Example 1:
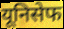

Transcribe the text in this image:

यूनिसेफ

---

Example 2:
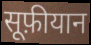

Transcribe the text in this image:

सूफ़ीयान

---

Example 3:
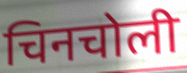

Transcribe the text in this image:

चिनचोली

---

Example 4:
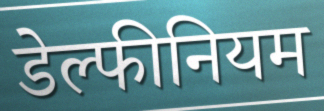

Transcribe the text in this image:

डेल्फीनियम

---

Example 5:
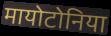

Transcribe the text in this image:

मायोटोनिया